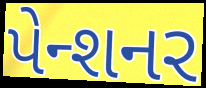
પેન્શનર